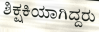
ಶಿಕ್ಷಕಿಯಾಗಿದ್ದರು